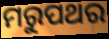
ମରୁପଥର